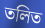
তলিত